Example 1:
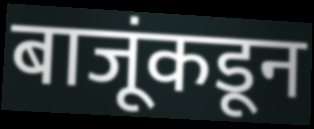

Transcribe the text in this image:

बाजूंकडून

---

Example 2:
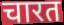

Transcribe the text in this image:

चारत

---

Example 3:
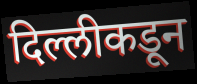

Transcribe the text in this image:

दिल्लीकडून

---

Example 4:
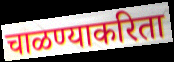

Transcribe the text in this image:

चाळण्याकरिता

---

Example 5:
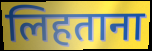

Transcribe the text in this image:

लिहताना